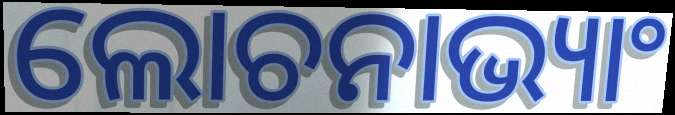
ଲୋଚନାଭ୍ୟାଂ